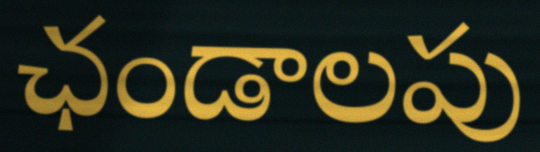
ఛండాలపు